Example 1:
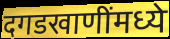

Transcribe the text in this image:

दगडखाणींमध्ये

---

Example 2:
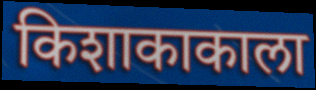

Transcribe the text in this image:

किशाकाकाला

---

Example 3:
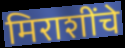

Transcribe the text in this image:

मिराशींचे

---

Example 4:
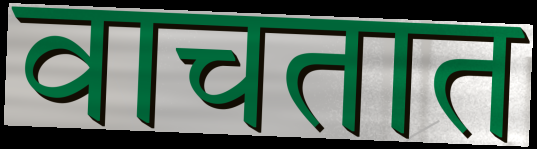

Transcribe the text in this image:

वाचतात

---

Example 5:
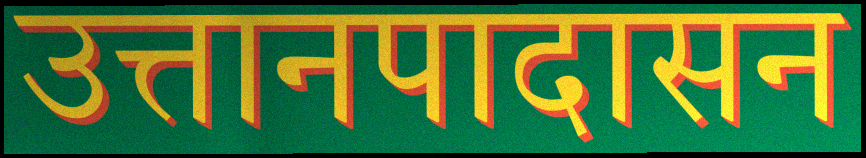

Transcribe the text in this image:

उत्तानपादासन